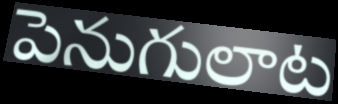
పెనుగులాట